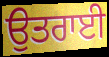
ਉਤਰਾਈ